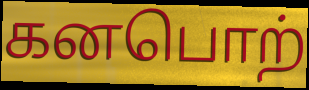
கனபொற்